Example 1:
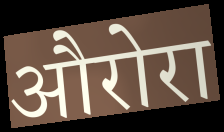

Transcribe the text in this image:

औरोरा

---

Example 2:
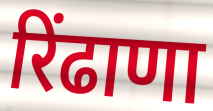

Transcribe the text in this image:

रिंढाणा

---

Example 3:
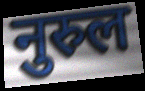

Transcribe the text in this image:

नुरुल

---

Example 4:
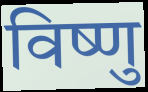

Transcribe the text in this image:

विष्‍णु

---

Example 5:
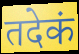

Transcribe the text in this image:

तदेकं